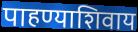
पाहण्याशिवाय